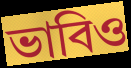
ভাবিও